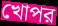
খোপর